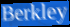
Berkley